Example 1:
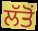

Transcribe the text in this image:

ਲੱਤੋਂ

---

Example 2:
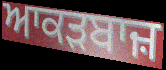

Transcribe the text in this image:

ਆਕੜਬਾਜ਼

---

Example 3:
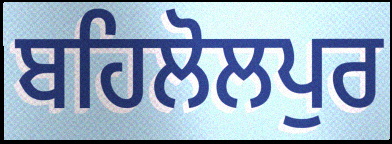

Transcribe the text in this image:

ਬਹਿਲੋਲਪੁਰ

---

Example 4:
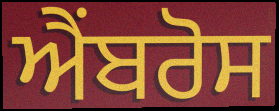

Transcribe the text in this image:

ਐਂਬਰੋਸ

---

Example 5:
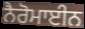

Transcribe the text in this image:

ਨੈਰੋਮਾਈਨ